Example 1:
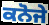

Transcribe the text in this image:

ਕਨੋਜੇ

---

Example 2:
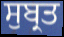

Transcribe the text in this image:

ਸੁਬ੍ਰਤ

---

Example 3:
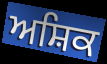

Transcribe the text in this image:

ਅਸ਼ਿਕ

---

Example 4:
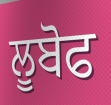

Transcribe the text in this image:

ਲੂਬੋਫ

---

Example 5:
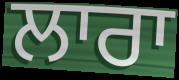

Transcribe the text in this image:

ਲਾਰਾ